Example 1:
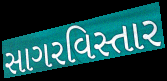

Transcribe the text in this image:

સાગરવિસ્તાર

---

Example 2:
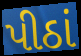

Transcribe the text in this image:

પીઠાં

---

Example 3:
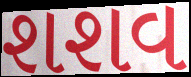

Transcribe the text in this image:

શશવ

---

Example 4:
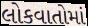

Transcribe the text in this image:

લોકવાતોમાં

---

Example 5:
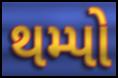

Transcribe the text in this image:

થમ્પો